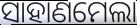
ସାହାଣମେଲା